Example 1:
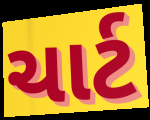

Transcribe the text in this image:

ચાર્ટ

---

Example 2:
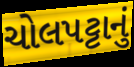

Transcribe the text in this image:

ચોલપટ્ટાનું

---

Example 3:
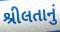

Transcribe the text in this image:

શ્રીલતાનું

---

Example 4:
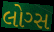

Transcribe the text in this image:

લોગ્સ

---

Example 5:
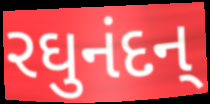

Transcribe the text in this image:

રઘુનંદન્